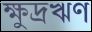
ক্ষুদ্রঋণ